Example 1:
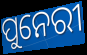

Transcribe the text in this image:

ପୁନେରୀ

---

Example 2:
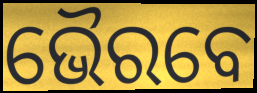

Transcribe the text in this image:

ଭୈରବେ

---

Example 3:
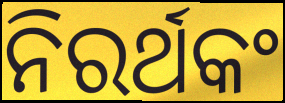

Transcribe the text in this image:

ନିରର୍ଥକଂ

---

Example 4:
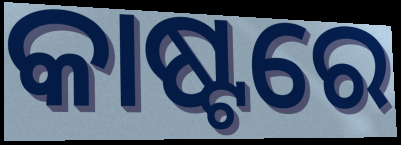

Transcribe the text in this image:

କାଷ୍ଟରେ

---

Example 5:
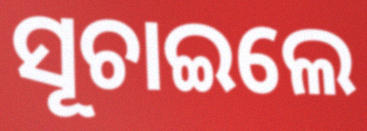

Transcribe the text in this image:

ସୂଚାଇଲେ